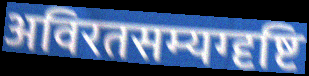
अविरतसम्यग्दृष्टि